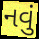
નવું